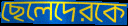
ছেলেদেরকে